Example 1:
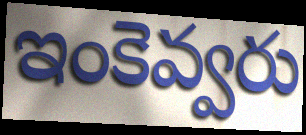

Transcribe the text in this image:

ఇంకెవ్వరు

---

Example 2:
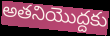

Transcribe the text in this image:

అతనియొద్దకు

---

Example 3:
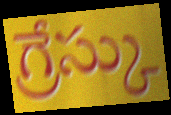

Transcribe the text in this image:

గ్రేస్కు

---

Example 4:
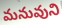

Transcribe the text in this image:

మనువుని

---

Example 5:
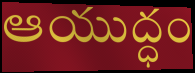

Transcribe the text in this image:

ఆయుద్ధం